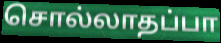
சொல்லாதப்பா